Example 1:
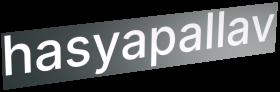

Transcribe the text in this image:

hasyapallav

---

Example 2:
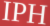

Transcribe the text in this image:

IPH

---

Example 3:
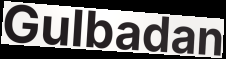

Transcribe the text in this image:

Gulbadan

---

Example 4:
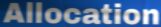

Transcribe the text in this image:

Allocation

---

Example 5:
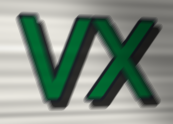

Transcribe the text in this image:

vx